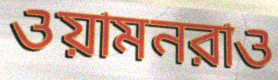
ওয়ামনরাও